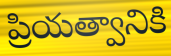
ప్రియత్వానికి